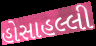
હોસાહલ્લી